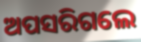
ଅପସରିଗଲେ